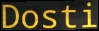
Dosti